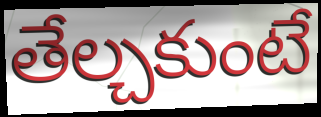
తేల్చకుంటే